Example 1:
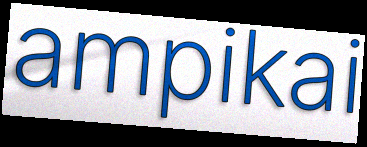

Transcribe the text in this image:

ampikai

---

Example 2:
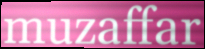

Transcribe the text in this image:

muzaffar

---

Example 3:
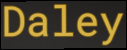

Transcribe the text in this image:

Daley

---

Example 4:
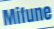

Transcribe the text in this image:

Mifune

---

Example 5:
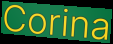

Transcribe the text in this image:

Corina